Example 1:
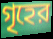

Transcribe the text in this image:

গৃহের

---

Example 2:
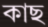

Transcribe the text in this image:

কাছ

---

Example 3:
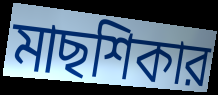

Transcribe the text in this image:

মাছশিকার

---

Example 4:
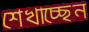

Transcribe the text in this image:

শেখাচ্ছেন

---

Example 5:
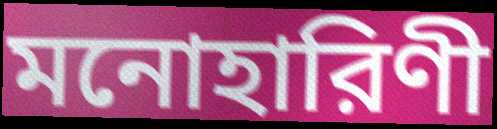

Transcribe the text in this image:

মনোহারিণী